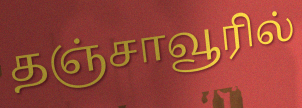
தஞ்சாவூரில்